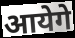
आयेगे